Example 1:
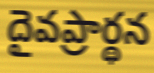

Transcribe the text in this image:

దైవప్రార్థన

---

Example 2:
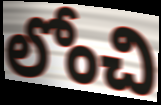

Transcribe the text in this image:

లోంచి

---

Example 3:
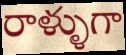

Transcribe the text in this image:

రాళ్ళుగా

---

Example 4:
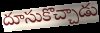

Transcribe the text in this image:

దూసుకొచ్చాడు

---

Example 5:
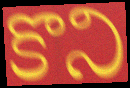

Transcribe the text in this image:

కొని